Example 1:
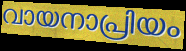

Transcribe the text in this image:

വായനാപ്രിയം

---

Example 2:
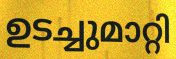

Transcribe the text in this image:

ഉടച്ചുമാറ്റി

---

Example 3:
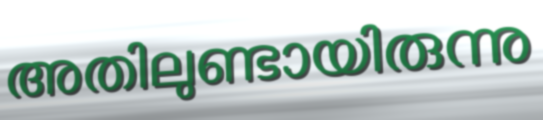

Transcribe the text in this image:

അതിലുണ്ടായിരുന്നു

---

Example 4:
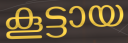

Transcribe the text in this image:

കൂട്ടായ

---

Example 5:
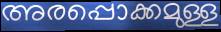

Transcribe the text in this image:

അരപ്പൊക്കമുള്ള